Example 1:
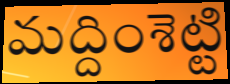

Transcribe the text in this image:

మద్దింశెట్టి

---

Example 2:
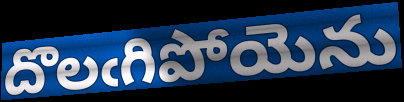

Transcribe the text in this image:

దొలఁగిపోయెను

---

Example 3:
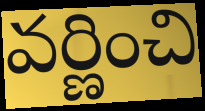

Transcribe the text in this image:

వర్ణించి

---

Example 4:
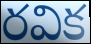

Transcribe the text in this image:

రవిక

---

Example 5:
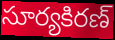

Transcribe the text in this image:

సూర్యకిరణ్